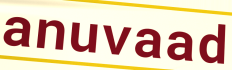
anuvaad